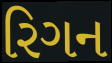
રિગન